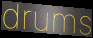
drums